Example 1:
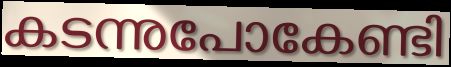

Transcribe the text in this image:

കടന്നുപോകേണ്ടി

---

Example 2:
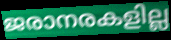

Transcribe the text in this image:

ജരാനരകളില്ല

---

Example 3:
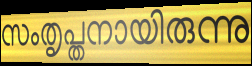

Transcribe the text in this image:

സംതൃപ്തനായിരുന്നു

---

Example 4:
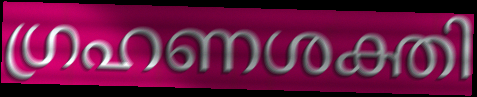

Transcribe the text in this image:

ഗ്രഹണശക്തി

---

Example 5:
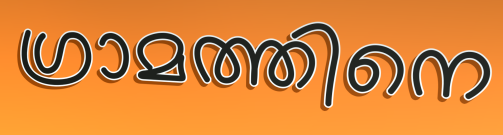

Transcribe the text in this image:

ഗ്രാമത്തിനെ